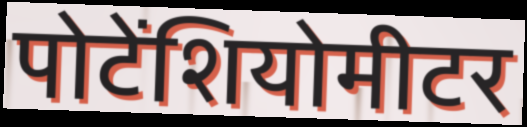
पोटेंशियोमीटर